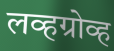
लव्हग्रोव्ह